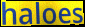
haloes